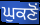
ਘੁਕਣੋਂ